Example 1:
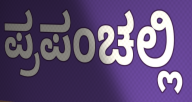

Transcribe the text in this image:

ಪ್ರಪಂಚಲ್ಲಿ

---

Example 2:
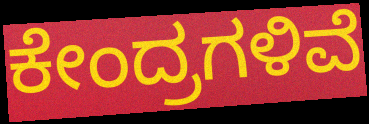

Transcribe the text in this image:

ಕೇಂದ್ರಗಳಿವೆ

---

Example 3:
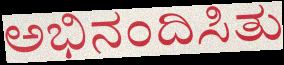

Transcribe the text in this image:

ಅಭಿನಂದಿಸಿತು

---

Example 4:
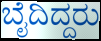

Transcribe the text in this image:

ಬೈದಿದ್ದರು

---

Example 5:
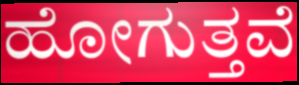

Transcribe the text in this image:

ಹೋಗುತ್ತವೆ